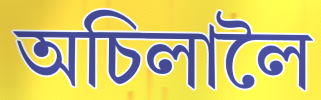
অচিলালৈ